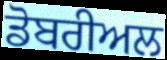
ਡੋਬਰੀਅਲ